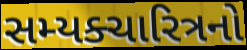
સમ્યક્ચારિત્રનો